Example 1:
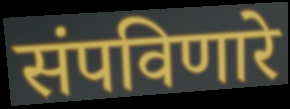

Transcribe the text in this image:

संपविणारे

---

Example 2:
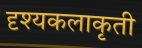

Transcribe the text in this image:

दृश्यकलाकृती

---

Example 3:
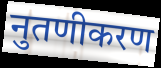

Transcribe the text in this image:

नुतणीकरण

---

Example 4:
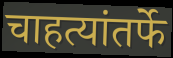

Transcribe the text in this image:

चाहत्यांतर्फे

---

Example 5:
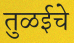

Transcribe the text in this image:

तुळईचे